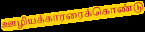
ஊழியக்காரரைக்கொண்டு